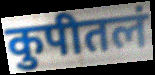
कुपीतलं